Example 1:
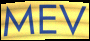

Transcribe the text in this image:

MEV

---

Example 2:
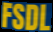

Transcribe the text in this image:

FSDL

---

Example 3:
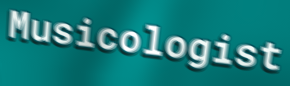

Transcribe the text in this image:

Musicologist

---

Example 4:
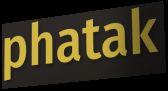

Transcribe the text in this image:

phatak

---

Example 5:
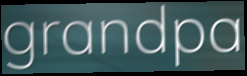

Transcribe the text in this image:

grandpa